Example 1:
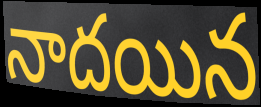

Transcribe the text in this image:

నాదయిన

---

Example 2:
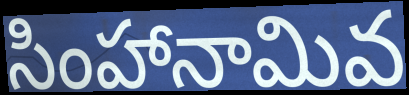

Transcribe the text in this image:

సింహానామివ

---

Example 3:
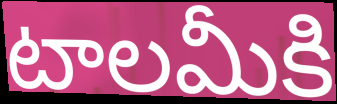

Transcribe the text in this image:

టాలమీకి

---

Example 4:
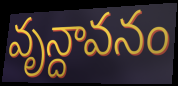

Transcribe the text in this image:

వృన్దావనం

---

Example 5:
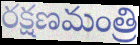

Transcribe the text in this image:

రక్షణమంత్రి